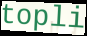
topli